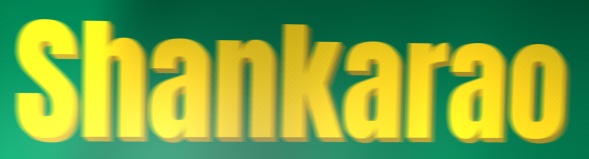
Shankarao